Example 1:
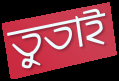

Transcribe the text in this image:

তুতাই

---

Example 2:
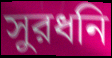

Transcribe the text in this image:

সুরধনি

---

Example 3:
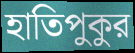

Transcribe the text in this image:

হাতিপুকুর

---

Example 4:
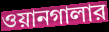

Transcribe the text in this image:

ওয়ানগালার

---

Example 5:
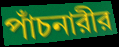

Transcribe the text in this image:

পাঁচনারীর